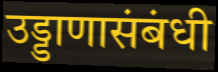
उड्डाणासंबंधी